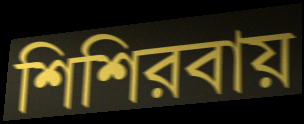
শিশিরবায়